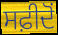
ਸਫ਼ੀਦੋਂ